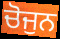
ਚੋਜੁਨ